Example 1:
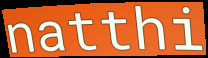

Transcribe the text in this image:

natthi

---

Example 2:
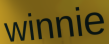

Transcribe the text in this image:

winnie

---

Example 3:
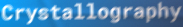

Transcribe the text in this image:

Crystallography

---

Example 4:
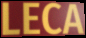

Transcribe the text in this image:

LECA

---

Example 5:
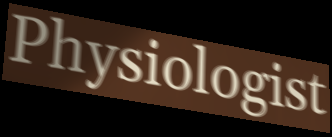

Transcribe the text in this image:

Physiologist